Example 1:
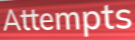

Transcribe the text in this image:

Attempts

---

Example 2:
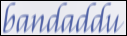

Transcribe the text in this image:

bandaddu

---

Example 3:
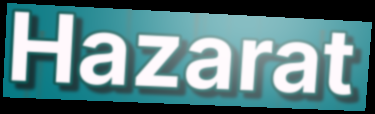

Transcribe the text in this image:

Hazarat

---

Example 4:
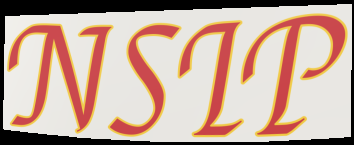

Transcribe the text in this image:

NSIP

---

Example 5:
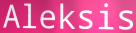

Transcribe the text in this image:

Aleksis